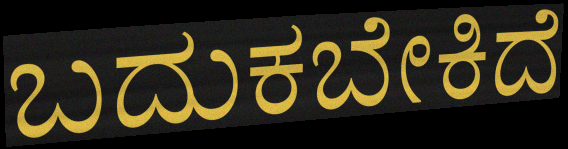
ಬದುಕಬೇಕಿದೆ